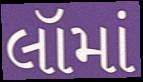
લૉમાં